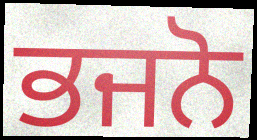
ਭਜਨੋ